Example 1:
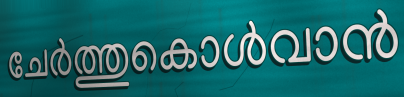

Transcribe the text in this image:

ചേർത്തുകൊൾവാൻ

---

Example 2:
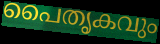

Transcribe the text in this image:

പൈതൃകവും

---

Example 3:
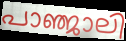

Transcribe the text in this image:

പാഞ്ജാലി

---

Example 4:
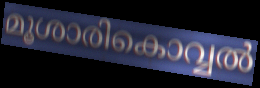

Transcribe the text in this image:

മൂശാരികൊവ്വൽ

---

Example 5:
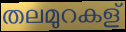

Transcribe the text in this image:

തലമുറകള്